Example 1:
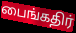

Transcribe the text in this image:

பைங்கதிர்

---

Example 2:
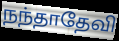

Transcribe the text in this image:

நந்தாதேவி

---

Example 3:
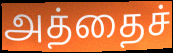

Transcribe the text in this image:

அத்தைச்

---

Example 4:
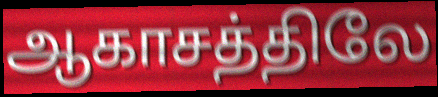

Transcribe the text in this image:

ஆகாசத்திலே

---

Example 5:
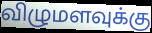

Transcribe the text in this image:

விழுமளவுக்கு